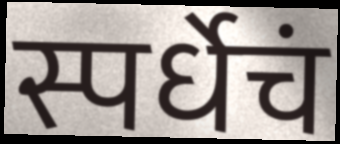
स्पर्धेचं